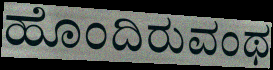
ಹೊಂದಿರುವಂಥ